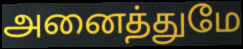
அனைத்துமே